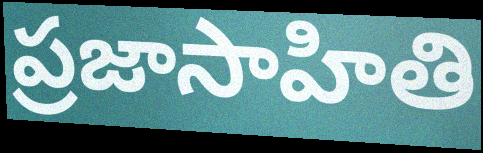
ప్రజాసాహితి